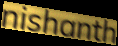
nishanth